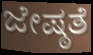
ಜೇಷ್ಠತೆ